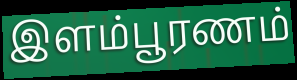
இளம்பூரணம்